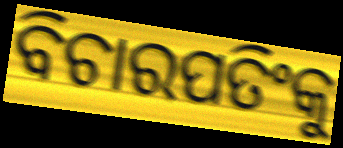
ବିଚାରପତିଂକୁ